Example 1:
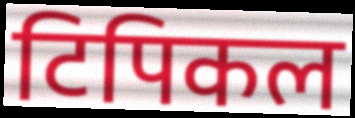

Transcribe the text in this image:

टिपिकल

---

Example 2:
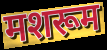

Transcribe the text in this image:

मशरूम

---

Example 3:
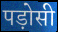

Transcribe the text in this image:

पड़ोसी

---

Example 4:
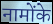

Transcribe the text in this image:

नामोंके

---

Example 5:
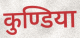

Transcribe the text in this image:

कुण्डिया